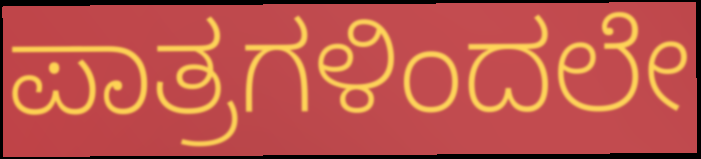
ಪಾತ್ರಗಳಿಂದಲೇ